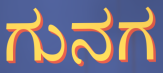
ಗುನಗ